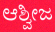
ಆಶ್ವೀಜ